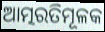
ଆତ୍ମରତିମୂଳକ